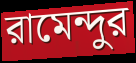
রামেন্দুর